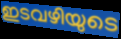
ഇടവഴിയുടെ